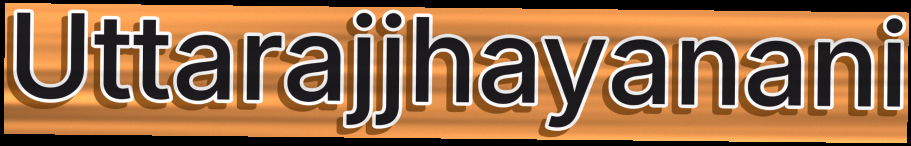
Uttarajjhayanani